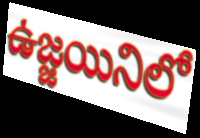
ఉజ్జయినిలో